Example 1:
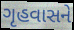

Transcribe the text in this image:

ગૃહવાસને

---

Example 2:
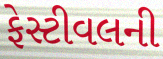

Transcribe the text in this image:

ફેસ્ટીવલની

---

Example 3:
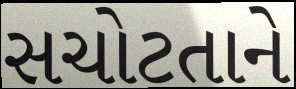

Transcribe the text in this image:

સચોટતાને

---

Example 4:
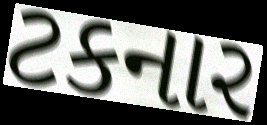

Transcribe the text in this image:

ટકનાર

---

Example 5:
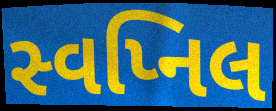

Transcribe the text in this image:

સ્વપ્નિલ